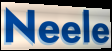
Neele